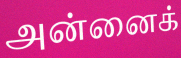
அன்னைக்